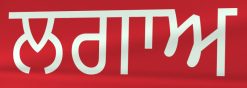
ਲਗਾਅ